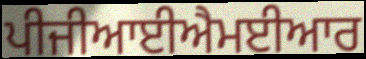
ਪੀਜੀਆਈਐਮਈਆਰ